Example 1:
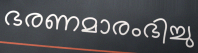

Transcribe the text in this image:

ഭരണമാരംഭിച്ചു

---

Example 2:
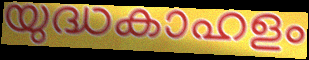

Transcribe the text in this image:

യുദ്ധകാഹളം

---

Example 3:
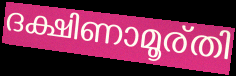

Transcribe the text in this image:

ദക്ഷിണാമൂര്തി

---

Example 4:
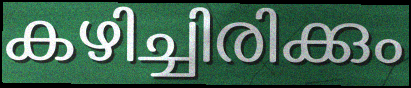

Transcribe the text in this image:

കഴിച്ചിരിക്കും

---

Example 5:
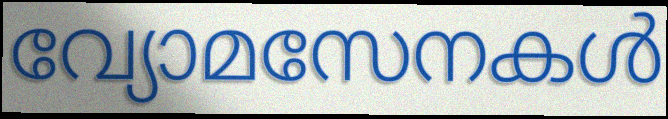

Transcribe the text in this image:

വ്യോമസേനകൾ